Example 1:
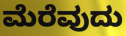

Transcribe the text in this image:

ಮೆರೆವುದು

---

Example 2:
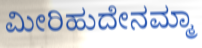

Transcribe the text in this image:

ಮೀರಿಹುದೇನಮ್ಮಾ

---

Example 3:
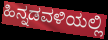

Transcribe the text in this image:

ಹಿನ್ನಡವಳಿಯಲ್ಲಿ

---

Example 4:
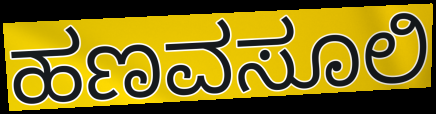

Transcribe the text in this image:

ಹಣವಸೂಲಿ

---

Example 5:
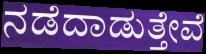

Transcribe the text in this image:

ನಡೆದಾಡುತ್ತೇವೆ